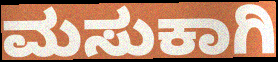
ಮಸುಕಾಗಿ